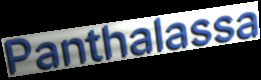
Panthalassa